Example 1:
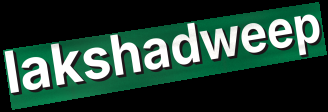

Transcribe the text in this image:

lakshadweep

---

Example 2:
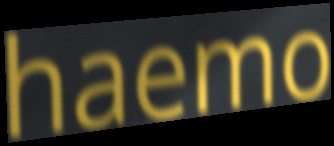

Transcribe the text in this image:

haemo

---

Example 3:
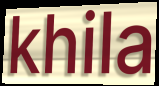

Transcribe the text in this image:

khila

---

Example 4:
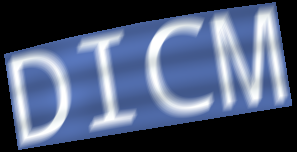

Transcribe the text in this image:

DICM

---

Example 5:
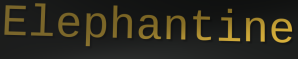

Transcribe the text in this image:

Elephantine